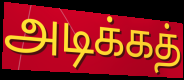
அடிக்கத்